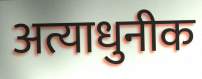
अत्याधुनीक